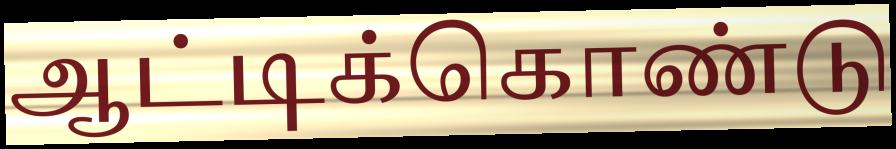
ஆட்டிக்கொண்டு